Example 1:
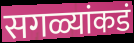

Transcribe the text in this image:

सगळ्यांकडं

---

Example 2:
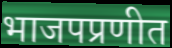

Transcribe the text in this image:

भाजपप्रणीत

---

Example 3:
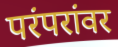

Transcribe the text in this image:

परंपरांवर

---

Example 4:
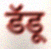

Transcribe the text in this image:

डॅडू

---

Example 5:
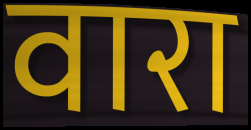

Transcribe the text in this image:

वारा